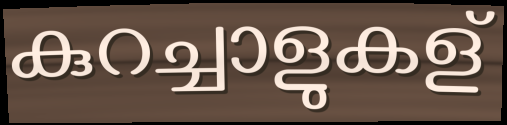
കുറച്ചാളുകള്